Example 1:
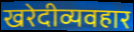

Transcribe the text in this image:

खरेदीव्यवहार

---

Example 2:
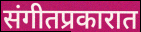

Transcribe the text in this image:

संगीतप्रकारात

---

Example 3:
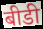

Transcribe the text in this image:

बीडी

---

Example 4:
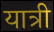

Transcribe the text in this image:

यात्री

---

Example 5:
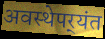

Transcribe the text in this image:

अवस्थेपर्यंत